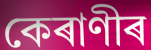
কেৰাণীৰ